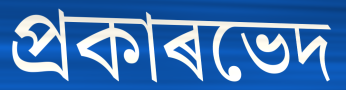
প্ৰকাৰভেদ